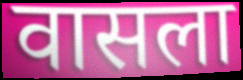
वासला